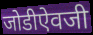
जोडीऐवजी